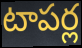
టాపర్ల